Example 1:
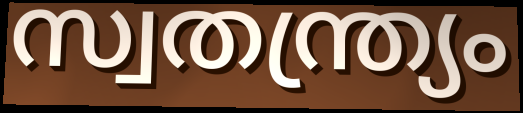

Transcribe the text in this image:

സ്വതന്ത്ര്യം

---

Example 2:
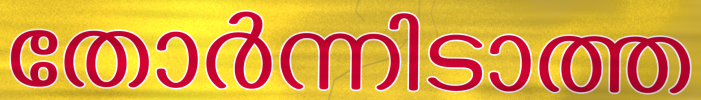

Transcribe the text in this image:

തോർന്നിടാത്ത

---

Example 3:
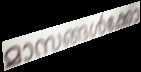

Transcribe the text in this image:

മാസങ്ങൾക്കോ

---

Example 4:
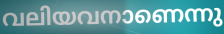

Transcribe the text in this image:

വലിയവനാണെന്നു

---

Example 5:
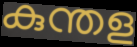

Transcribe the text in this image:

കുന്തള